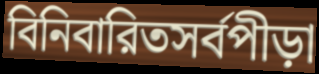
বিনিবারিতসর্বপীড়া